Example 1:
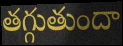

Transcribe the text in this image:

తగ్గుతుందా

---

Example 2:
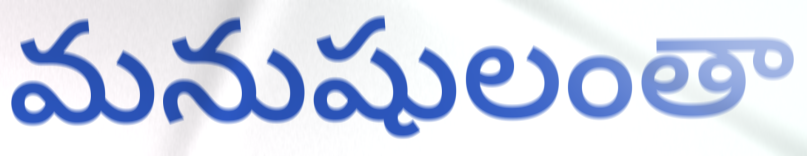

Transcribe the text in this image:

మనుషులంతా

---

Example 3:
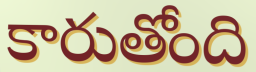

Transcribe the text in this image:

కారుతోంది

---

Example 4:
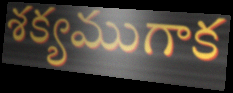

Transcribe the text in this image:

శక్యముగాక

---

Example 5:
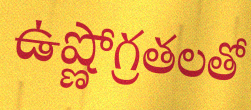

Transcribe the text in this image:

ఉష్ణోగ్రతలతో